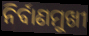
ନିର୍ବାଣମୁଖୀ